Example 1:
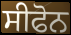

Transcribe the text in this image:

ਸੀਫੋਨ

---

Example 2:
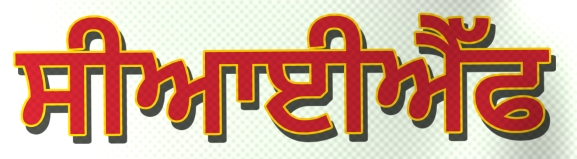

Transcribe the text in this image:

ਸੀਆਈਐੱਫ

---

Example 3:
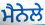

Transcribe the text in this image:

ਮੈਨੇਲੇ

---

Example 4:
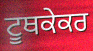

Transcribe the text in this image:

ਟੂਥਕੇਕਰ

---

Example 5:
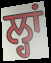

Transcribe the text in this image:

ਲ੍ਹਾਂ